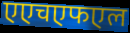
एएचएफएल